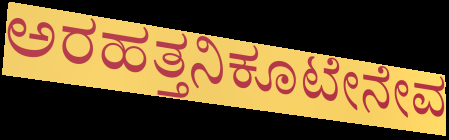
ಅರಹತ್ತನಿಕೂಟೇನೇವ